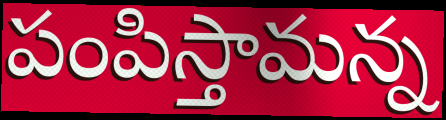
పంపిస్తామన్న